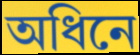
অধিনে